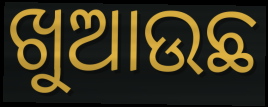
ଖୁଆଉଛ